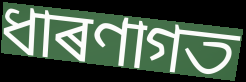
ধাৰণাগত